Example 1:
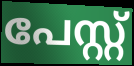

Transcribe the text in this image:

പേസ്റ്റ്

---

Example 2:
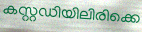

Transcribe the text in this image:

കസ്റ്റഡിയിലിരിക്കെ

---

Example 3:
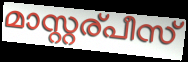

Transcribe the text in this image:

മാസ്റ്റര്പീസ്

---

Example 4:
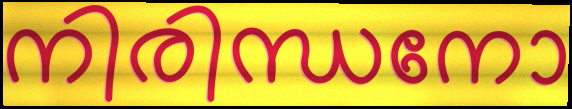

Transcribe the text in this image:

നിരിന്ധനോ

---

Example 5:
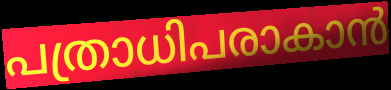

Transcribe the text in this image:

പത്രാധിപരാകാൻ